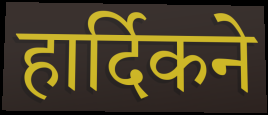
हार्दिकने